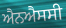
ਐਨਐਸਸੀ